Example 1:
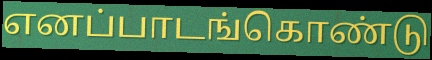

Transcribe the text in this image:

எனப்பாடங்கொண்டு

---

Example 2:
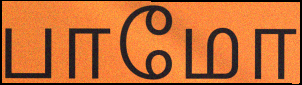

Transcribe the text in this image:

பாமோ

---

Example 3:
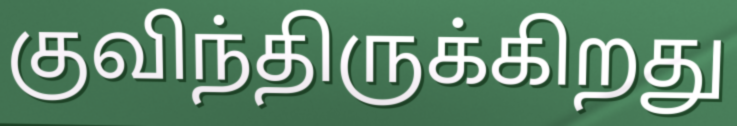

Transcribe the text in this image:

குவிந்திருக்கிறது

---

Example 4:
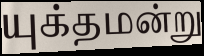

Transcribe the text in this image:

யுக்தமன்று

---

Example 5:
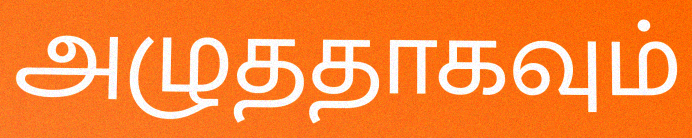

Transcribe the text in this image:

அழுததாகவும்